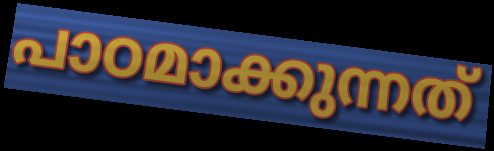
പാഠമാക്കുന്നത്